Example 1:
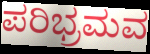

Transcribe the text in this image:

ಪರಿಭ್ರಮವ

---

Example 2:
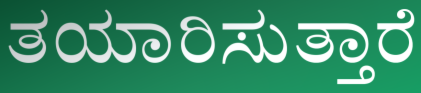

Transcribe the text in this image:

ತಯಾರಿಸುತ್ತಾರೆ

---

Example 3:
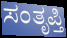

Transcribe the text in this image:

ಸಂತೃಪ್ತಿ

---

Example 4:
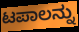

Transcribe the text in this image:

ಟಪಾಲನ್ನು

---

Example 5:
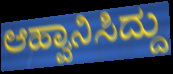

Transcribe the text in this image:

ಆಹ್ವಾನಿಸಿದ್ದು